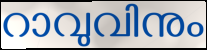
റാവുവിനും